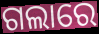
ଗଲାରେ